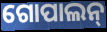
ଗୋପାଲନ୍